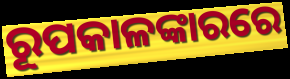
ରୂପକାଳଙ୍କାରରେ